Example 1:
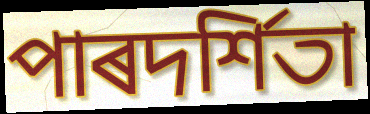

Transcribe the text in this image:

পাৰদৰ্শিতা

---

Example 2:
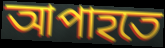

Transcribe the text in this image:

আপাহতে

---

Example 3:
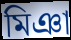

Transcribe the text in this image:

মিঞা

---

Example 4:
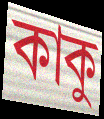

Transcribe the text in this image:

কাকু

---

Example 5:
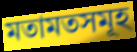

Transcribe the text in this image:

মতামতসমূহ